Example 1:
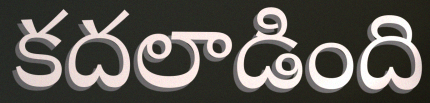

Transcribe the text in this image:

కదలాడింది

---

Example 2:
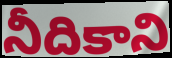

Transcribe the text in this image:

నీదికాని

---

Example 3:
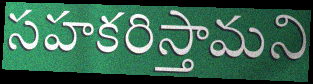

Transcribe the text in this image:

సహకరిస్తామని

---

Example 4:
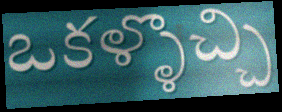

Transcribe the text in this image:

ఒకళ్ళొచ్చి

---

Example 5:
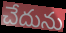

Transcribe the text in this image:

చేదును